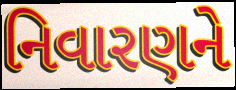
નિવારણને